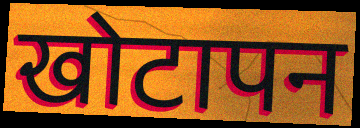
खोटापन